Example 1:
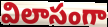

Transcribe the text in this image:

విలాసంగా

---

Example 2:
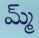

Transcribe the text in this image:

మ్మ్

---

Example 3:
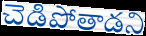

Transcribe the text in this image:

చెడిపోతాడని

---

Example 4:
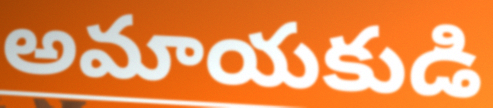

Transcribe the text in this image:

అమాయకుడి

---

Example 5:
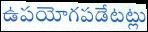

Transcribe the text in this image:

ఉపయోగపడేటట్లు